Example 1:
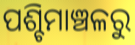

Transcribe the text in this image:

ପଶ୍ଚିମାଞ୍ଚଳରୁ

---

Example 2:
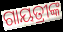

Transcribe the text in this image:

ଗାୟତ୍ରୀଙ୍କ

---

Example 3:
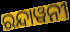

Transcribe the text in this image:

ରନ୍ଦାୱନୀ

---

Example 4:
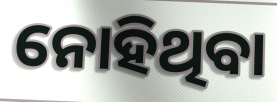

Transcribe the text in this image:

ନୋହିଥିବା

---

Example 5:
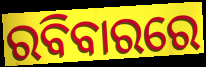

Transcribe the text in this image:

ରବିବାରରେ